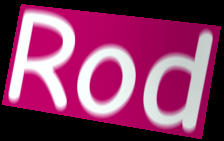
Rod